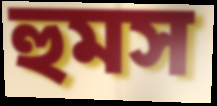
হুমস